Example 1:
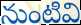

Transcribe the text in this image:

నుంటివి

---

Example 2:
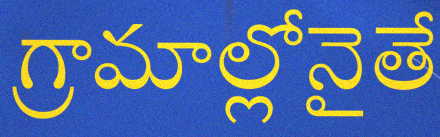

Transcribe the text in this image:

గ్రామాల్లోనైతే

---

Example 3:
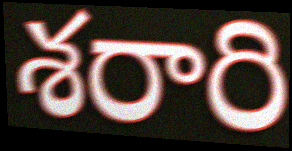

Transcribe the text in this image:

శరారి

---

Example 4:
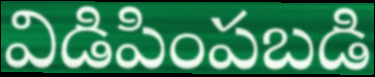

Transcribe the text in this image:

విడిపింపబడి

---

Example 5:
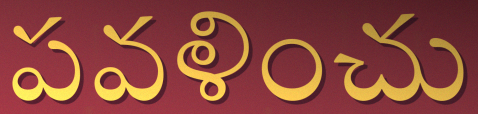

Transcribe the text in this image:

పవళించు